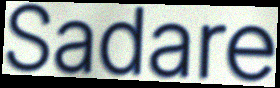
Sadare